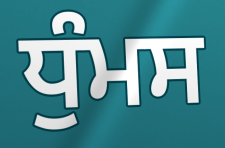
ਧੁੰਮਸ